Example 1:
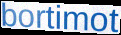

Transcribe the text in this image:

bortimot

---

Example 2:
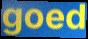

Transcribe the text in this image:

goed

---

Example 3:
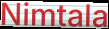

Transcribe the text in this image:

Nimtala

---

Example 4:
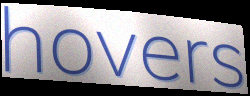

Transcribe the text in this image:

hovers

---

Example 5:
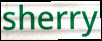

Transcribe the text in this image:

sherry